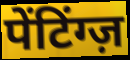
पेंटिंग्ज़